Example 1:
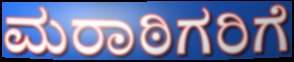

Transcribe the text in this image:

ಮರಾಠಿಗರಿಗೆ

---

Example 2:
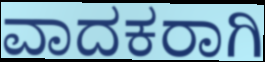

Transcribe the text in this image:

ವಾದಕರಾಗಿ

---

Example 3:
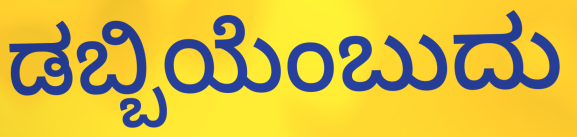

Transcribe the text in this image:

ಡಬ್ಬಿಯೆಂಬುದು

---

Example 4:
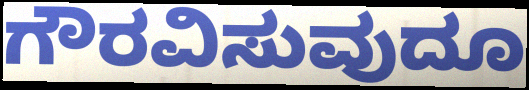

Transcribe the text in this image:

ಗೌರವಿಸುವುದೂ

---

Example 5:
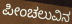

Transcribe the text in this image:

ಪೀಂಚಲುವಿನ